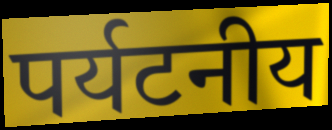
पर्यटनीय